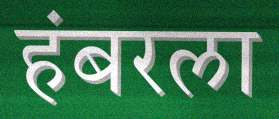
हंबरला